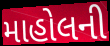
માહોલની